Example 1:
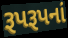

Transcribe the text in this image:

રૂપરૂપનાં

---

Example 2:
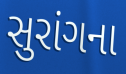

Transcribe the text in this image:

સુરાંગના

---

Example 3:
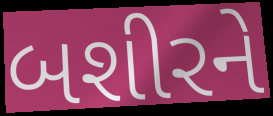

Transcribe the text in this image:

બશીરને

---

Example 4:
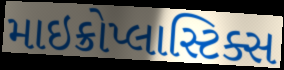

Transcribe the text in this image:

માઇક્રોપ્લાસ્ટિક્સ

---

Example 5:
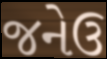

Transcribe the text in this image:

જનેઉ